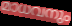
മാധവനും